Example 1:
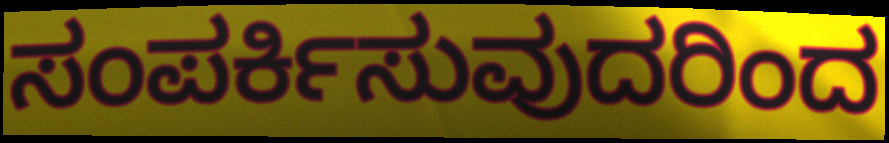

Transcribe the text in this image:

ಸಂಪರ್ಕಿಸುವುದರಿಂದ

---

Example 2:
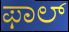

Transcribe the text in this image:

ಫಾಲ್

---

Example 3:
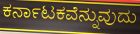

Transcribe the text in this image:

ಕರ್ನಾಟಕವೆನ್ನುವುದು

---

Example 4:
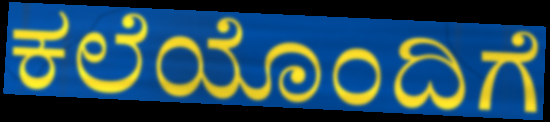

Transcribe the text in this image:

ಕಲೆಯೊಂದಿಗೆ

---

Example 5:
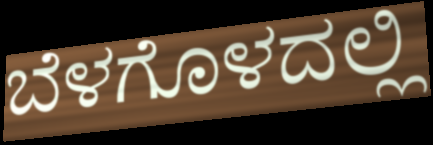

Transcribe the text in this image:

ಬೆಳಗೊಳದಲ್ಲಿ